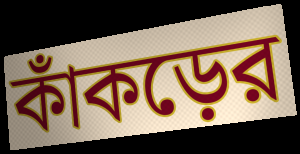
কাঁকড়ের